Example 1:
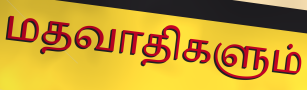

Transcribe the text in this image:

மதவாதிகளும்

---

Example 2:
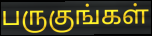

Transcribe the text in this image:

பருகுங்கள்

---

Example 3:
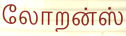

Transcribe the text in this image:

லோறன்ஸ்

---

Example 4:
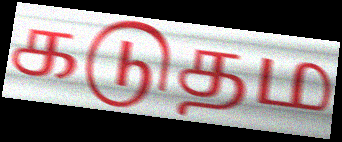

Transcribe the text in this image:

கடுதம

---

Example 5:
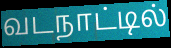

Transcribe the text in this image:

வடநாட்டில்